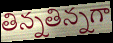
తిన్నతిన్నగా